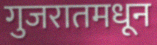
गुजरातमधून